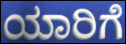
ಯಾರಿಗೆ